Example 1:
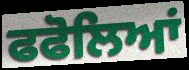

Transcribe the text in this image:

ਫਫੋਲਿਆਂ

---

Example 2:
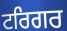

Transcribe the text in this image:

ਟਰਿਗਰ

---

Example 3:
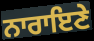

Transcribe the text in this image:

ਨਾਰਾਇਣੇ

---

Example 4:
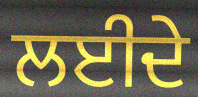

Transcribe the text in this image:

ਲਈਦੇ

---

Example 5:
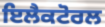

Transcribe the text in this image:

ਇਲੈਕਟੋਰਲ